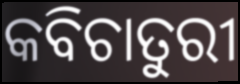
କବିଚାତୁରୀ